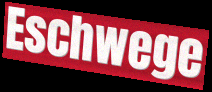
Eschwege